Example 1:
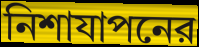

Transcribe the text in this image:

নিশাযাপনের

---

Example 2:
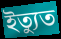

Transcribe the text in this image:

ইত্যুত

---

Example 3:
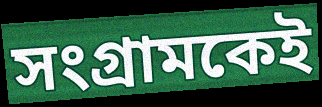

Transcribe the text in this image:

সংগ্রামকেই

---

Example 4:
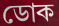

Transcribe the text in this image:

ডোক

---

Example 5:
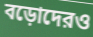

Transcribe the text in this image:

বড়োদেরও